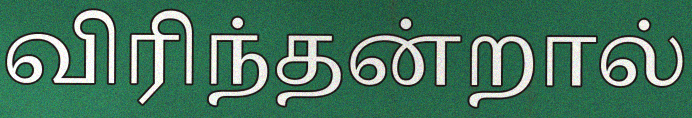
விரிந்தன்றால்